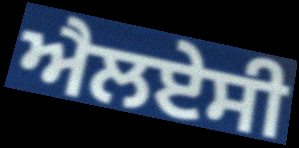
ਐਲਏਸੀ